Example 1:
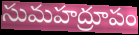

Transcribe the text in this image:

సుమహద్రూపం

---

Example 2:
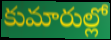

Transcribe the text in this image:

కుమారుల్లో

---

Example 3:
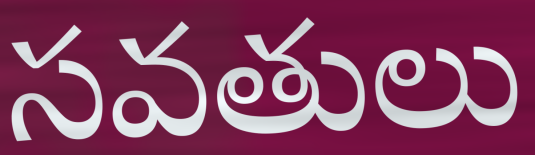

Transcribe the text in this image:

సవతులు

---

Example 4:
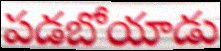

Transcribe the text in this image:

పడబోయాడు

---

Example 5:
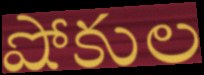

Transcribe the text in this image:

షోకుల